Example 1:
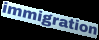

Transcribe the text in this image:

immigration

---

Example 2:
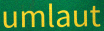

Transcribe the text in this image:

umlaut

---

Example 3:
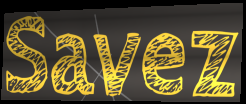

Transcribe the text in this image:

Savez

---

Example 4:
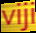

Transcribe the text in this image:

viji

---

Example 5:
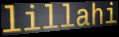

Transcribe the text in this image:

lillahi